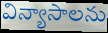
విన్యాసాలను